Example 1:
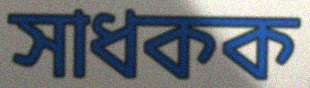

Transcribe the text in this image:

সাধকক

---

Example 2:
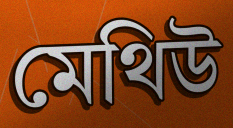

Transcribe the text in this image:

মেথিউ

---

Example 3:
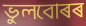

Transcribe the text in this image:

ভুলবোৰৰ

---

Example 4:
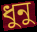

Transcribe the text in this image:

ধুনু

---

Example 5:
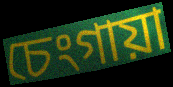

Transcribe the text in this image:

চেংগায়া